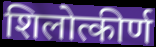
शिलोत्कीर्ण